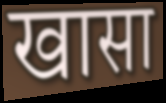
खासा